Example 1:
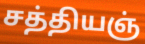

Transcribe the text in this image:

சத்தியஞ்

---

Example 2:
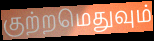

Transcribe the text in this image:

குற்றமெதுவும்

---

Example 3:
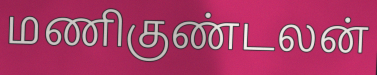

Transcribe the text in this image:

மணிகுண்டலன்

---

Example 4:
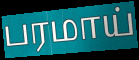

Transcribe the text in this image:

பரமாய்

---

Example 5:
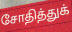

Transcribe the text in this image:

சோதித்துக்